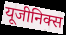
यूजीनिक्स